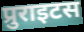
प्रुराइटस